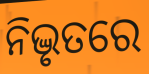
ନିଦ୍ଭୃତରେ